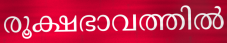
രൂക്ഷഭാവത്തിൽ